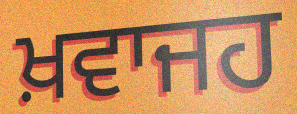
ਖ਼ਵਾਜਹ